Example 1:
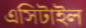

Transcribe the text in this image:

এসিটাইল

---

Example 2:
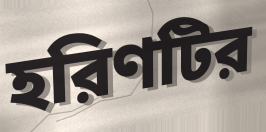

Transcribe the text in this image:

হরিণটির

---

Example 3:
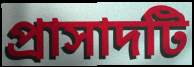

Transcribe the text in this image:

প্রাসাদটি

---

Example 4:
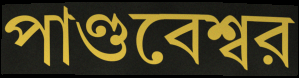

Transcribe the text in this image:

পাণ্ডবেশ্বর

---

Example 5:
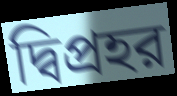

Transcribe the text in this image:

দ্বিপ্রহর